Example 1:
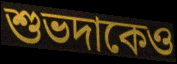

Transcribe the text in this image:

শুভদাকেও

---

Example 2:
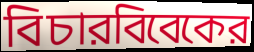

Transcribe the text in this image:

বিচারবিবেকের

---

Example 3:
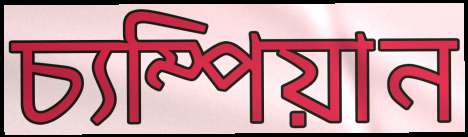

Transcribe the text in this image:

চ্যম্পিয়ান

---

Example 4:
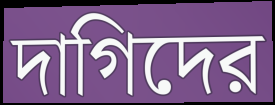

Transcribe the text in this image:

দাগিদের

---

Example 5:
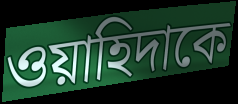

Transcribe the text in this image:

ওয়াহিদাকে